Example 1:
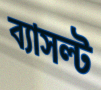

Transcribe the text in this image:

ব্যাসল্ট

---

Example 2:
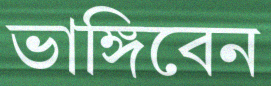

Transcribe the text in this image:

ভাঙ্গিবেন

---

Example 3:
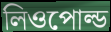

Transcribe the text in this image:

লিওপোল্ড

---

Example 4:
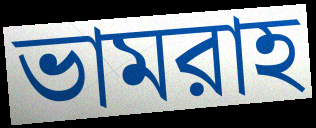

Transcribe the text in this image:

ভামরাহ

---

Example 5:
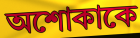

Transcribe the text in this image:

অশোকাকে